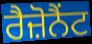
ਰੈਜ਼ੋਨੈਂਟ